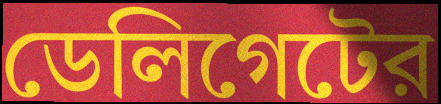
ডেলিগেটের